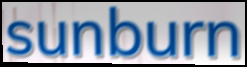
sunburn